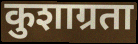
कुशाग्रता